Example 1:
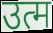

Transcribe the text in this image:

उत्म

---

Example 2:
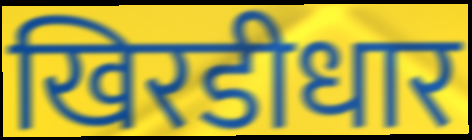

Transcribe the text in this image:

खिरडीधार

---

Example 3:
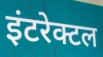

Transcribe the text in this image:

इंटरेक्टल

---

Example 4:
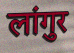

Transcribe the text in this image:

लांगुर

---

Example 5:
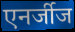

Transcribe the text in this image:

एनर्जीज